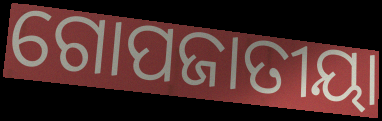
ଗୋପଜାତୀୟା